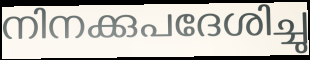
നിനക്കുപദേശിച്ചു